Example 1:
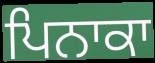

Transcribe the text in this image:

ਪਿਨਾਕਾ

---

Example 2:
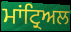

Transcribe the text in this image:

ਮਾਂਟ੍ਰਿਅਲ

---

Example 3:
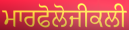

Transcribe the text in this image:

ਮਾਰਫੋਲੋਜੀਕਲੀ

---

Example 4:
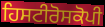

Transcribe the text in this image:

ਹਿਸਟੀਰੋਸਕੋਪੀ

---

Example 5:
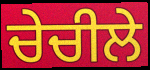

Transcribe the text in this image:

ਚੇਚੀਲੇ